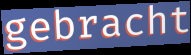
gebracht